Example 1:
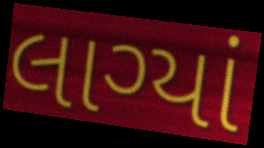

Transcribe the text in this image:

લાગ્યાં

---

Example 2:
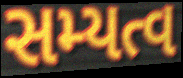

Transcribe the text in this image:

સમ્યત્વ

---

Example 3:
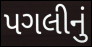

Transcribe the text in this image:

પગલીનું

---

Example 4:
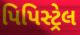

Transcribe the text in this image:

પિપિસ્ટ્રેલ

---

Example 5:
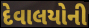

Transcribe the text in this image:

દેવાલયોની